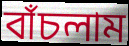
বাঁচলাম